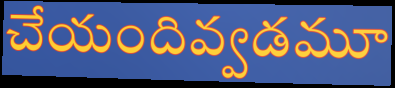
చేయందివ్వడమూ